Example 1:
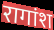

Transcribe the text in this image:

रागांश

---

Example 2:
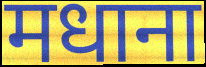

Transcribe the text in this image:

मधाना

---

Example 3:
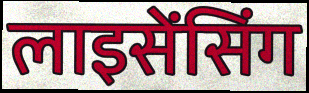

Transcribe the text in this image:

लाइसेंसिंग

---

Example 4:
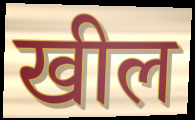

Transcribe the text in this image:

खील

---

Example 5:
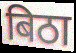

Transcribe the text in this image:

बिठा